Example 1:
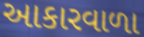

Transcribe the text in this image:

આકારવાળા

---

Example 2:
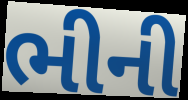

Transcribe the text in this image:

ભીની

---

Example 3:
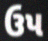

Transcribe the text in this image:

ઉપ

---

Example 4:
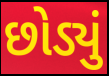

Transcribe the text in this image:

છોડ્યું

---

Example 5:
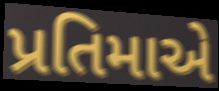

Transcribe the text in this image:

પ્રતિમાએ